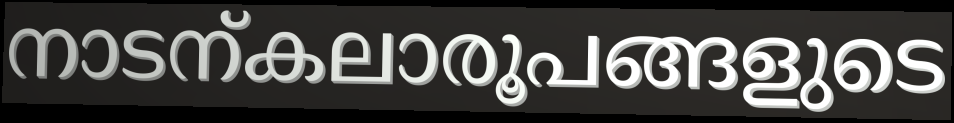
നാടന്കലാരൂപങ്ങളുടെ